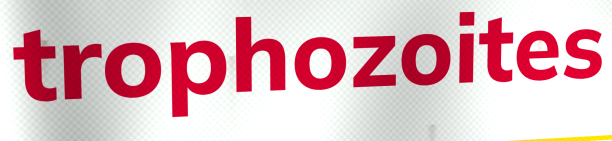
trophozoites